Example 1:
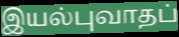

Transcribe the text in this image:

இயல்புவாதப்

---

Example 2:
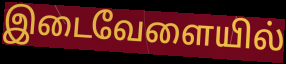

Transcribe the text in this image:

இடைவேளையில்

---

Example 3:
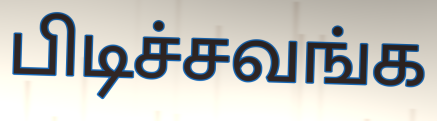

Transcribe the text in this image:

பிடிச்சவங்க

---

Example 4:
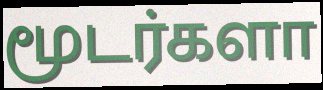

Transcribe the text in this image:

மூடர்களா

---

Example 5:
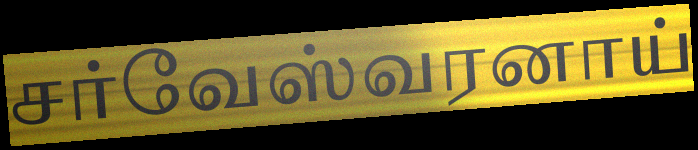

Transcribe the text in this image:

சர்வேஸ்வரனாய்